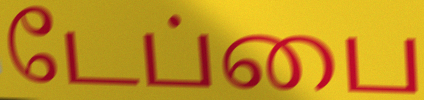
டேப்பை